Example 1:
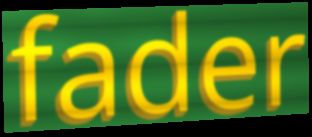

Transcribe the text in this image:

fader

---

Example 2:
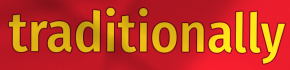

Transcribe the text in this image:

traditionally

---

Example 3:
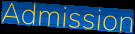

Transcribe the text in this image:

Admission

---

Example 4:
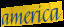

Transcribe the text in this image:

america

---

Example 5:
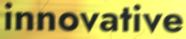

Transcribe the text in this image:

innovative